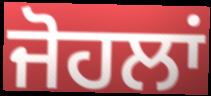
ਜੋਹਲਾਂ